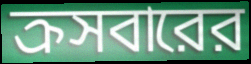
ক্রসবারের